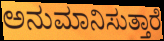
ಅನುಮಾನಿಸುತ್ತಾರೆ